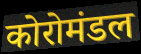
कोरोमंडल